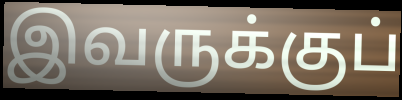
இவருக்குப்